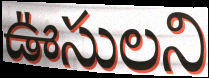
ఊసులని